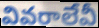
వివరాలేవీ